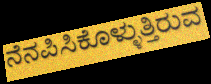
ನೆನಪಿಸಿಕೊಳ್ಳುತ್ತಿರುವ